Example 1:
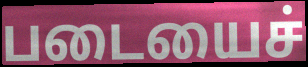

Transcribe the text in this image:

படையைச்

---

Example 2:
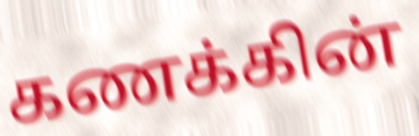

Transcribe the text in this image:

கணக்கின்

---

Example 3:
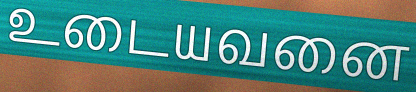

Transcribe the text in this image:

உடையவனை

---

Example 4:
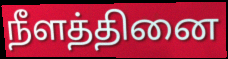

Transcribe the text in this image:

நீளத்தினை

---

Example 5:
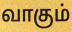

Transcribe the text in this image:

வாகும்